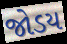
જોડય